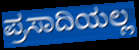
ಪ್ರಸಾದಿಯಲ್ಲ